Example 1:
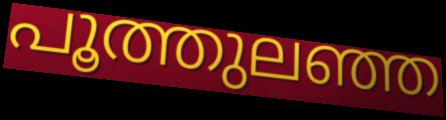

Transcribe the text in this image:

പൂത്തുലഞ്ഞ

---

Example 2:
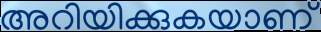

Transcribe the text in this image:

അറിയിക്കുകയാണ്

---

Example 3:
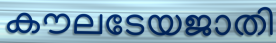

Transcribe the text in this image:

കൗലടേയജാതി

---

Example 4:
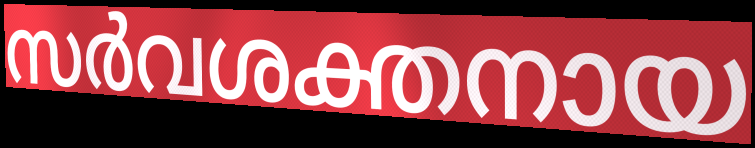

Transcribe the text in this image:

സർവശക്തനായ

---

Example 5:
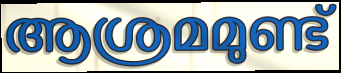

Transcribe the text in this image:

ആശ്രമമുണ്ട്